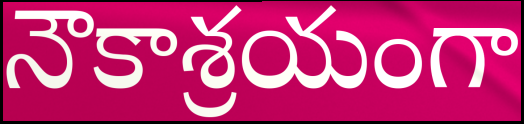
నౌకాశ్రయంగా